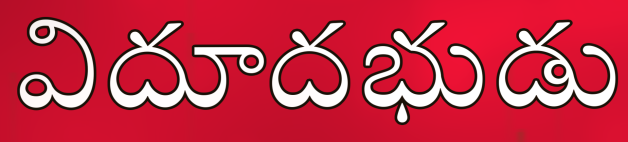
విదూదభుడు